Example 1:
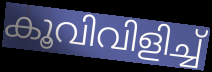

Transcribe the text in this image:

കൂവിവിളിച്ച്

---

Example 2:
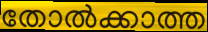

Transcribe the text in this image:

തോൽക്കാത്ത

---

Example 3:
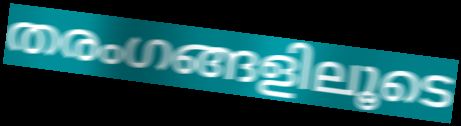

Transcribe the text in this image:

തരംഗങ്ങളിലൂടെ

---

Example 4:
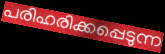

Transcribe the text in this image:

പരിഹരിക്കപ്പെടുന്ന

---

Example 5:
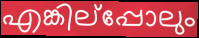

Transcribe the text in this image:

എങ്കില്പ്പോലും